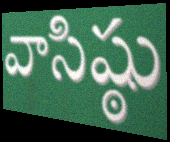
వాసిష్ఠు